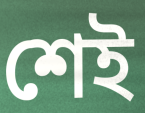
শেই